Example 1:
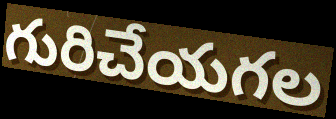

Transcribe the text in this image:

గురిచేయగల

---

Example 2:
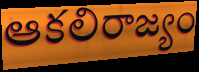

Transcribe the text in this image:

ఆకలిరాజ్యం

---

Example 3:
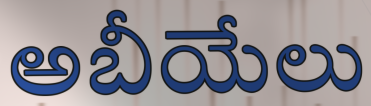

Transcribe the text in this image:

అబీయేలు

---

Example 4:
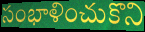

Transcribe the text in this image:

సంభాళించుకొని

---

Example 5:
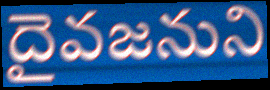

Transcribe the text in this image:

దైవజనుని